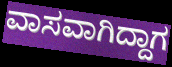
ವಾಸವಾಗಿದ್ದಾಗ